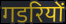
गडरियों